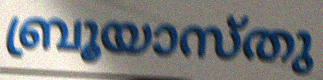
ബ്രൂയാസ്തു